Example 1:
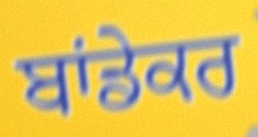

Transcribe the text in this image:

ਬਾਂਡੇਕਰ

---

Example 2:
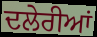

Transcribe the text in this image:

ਦਲੇਰੀਆਂ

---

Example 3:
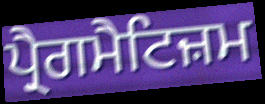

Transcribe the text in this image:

ਪ੍ਰੈਗਮੈਟਿਜ਼ਮ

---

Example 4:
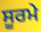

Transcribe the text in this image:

ਸੂਰਮੇ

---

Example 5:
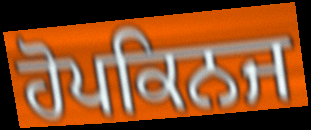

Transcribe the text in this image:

ਹੋਪਕਿਨਜ